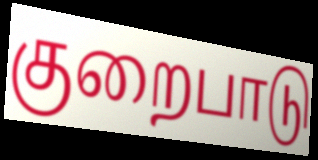
குறைபாடு